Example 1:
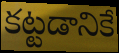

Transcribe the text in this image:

కట్టడానికే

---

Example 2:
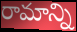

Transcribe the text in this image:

రామాన్ని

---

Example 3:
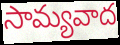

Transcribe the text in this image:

సామ్యవాద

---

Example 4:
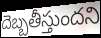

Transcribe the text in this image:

దెబ్బతీస్తుందని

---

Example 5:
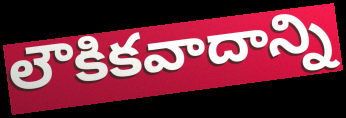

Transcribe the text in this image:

లౌకికవాదాన్ని